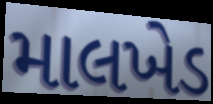
માલખેડ